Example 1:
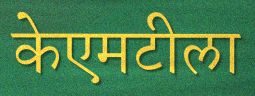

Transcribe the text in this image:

केएमटीला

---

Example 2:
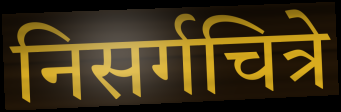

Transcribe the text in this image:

निसर्गचित्रे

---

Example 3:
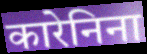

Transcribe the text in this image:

कारेनिना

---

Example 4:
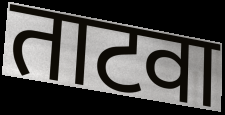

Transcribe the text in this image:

ताटवा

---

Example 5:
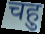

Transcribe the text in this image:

चहु